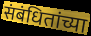
संबंधितांच्या